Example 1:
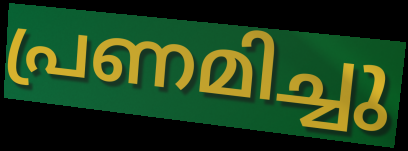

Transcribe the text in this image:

പ്രണമിച്ചു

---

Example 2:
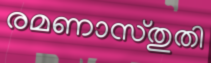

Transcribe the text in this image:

രമണാസ്തുതി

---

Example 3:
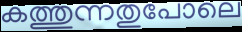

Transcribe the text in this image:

കത്തുന്നതുപോലെ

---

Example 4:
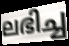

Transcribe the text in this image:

ലഭിച്ച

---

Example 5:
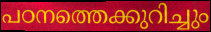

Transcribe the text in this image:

പഠനത്തെക്കുറിച്ചും